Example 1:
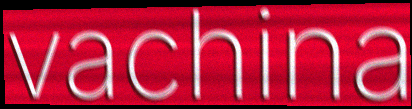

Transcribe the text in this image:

vachina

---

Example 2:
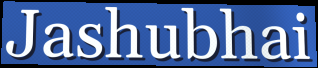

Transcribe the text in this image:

Jashubhai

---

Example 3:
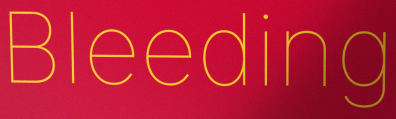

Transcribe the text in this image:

Bleeding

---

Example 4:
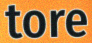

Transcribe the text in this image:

tore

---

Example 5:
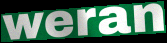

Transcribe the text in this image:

weran